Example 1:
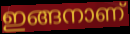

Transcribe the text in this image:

ഇങ്ങനാണ്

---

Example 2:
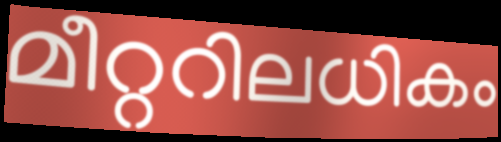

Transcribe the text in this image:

മീറ്ററിലധികം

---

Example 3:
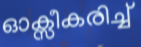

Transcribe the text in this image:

ഓക്സീകരിച്ച്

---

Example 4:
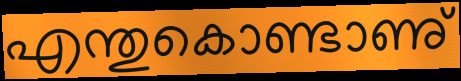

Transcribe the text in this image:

എന്തുകൊണ്ടാണു്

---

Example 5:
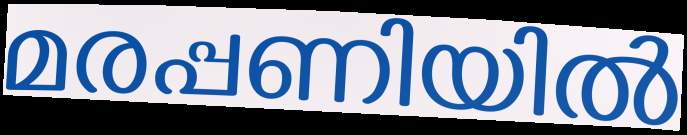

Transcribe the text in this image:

മരപ്പണിയിൽ